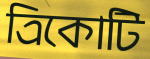
ত্রিকোটি